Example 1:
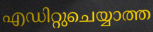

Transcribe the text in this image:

എഡിറ്റുചെയ്യാത്ത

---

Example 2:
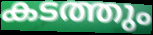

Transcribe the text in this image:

കടത്തും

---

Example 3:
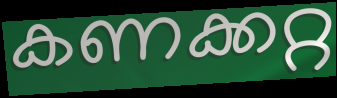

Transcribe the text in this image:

കണക്കറ്റ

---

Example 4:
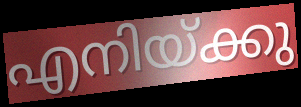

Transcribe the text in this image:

എനിയ്ക്കു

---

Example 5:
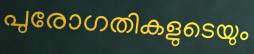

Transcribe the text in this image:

പുരോഗതികളുടെയും